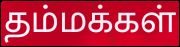
தம்மக்கள்